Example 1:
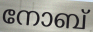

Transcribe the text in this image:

നോബ്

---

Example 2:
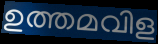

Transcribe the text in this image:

ഉത്തമവിള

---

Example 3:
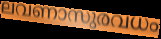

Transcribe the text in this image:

ലവണാസുരവധം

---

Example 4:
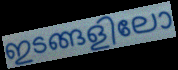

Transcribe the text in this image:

ഇടങ്ങളിലോ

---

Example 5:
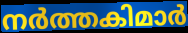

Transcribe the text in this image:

നർത്തകിമാർ